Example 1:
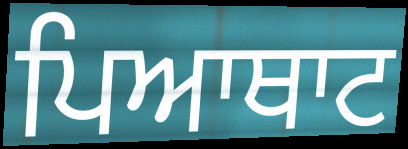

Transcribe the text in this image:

ਪਿਆਥਾਟ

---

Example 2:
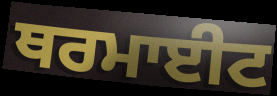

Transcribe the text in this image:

ਥਰਮਾਈਟ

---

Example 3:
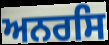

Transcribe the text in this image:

ਅਨਰਸਿ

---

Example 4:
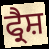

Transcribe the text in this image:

ਫ੍ਰੈਸ਼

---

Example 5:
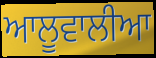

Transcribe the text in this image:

ਆਲੂਵਾਲੀਆ